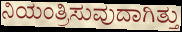
ನಿಯಂತ್ರಿಸುವುದಾಗಿತ್ತು